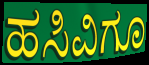
ಹಸಿವಿಗೂ